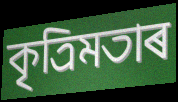
কৃত্ৰিমতাৰ